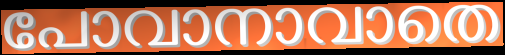
പോവാനാവാതെ